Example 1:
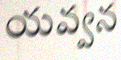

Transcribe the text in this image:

యవ్వన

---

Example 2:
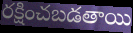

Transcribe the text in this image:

రక్షించబడతాయి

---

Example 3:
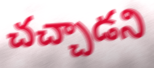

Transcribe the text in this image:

చచ్చాడని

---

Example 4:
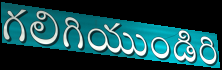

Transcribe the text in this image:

గలిగియుండిరి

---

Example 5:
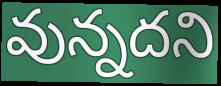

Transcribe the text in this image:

వున్నదని